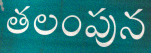
తలంపున